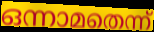
ഒന്നാമതെന്ന്